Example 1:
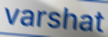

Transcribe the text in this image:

varshat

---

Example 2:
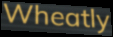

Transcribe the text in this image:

Wheatly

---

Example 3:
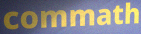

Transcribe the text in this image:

commath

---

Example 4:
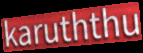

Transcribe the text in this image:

karuththu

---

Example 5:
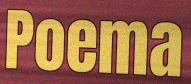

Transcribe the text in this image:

Poema